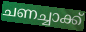
ചണച്ചാക്ക്